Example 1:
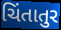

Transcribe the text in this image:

ચિંતાતુર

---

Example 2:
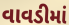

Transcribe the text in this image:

વાવડીમાં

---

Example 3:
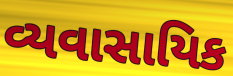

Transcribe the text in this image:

વ્યવાસાયિક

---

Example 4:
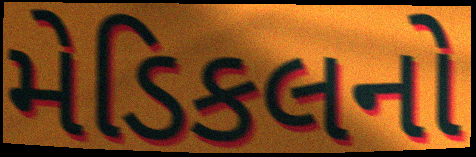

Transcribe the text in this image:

મેડિકલનો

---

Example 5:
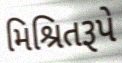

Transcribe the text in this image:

મિશ્રિતરૂપે